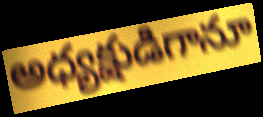
అధ్యక్షుడిగానూ